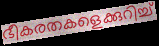
ഭീകരതകളെക്കുറിച്ച്